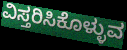
ವಿಸ್ತರಿಸಿಕೊಳ್ಳುವ